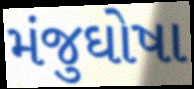
મંજુઘોષા